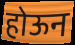
होऊन